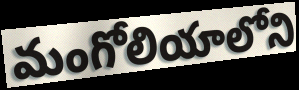
మంగోలియాలోని